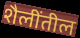
शैलींतील